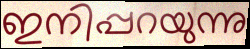
ഇനിപ്പറയുന്നു